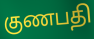
குணபதி